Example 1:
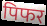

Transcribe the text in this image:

पिफर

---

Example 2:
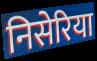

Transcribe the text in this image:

निसेरिया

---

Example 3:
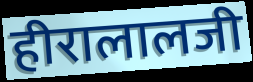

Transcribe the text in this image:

हीरालालजी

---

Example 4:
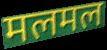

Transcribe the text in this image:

मलमल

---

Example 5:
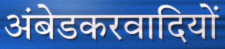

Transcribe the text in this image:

अंबेडकरवादियों